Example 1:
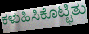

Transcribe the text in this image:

ಕಳುಹಿಸಿಕೊಟ್ಟಿತು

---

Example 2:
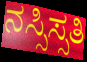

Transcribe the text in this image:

ನಸ್ಸಿಸ್ಸತಿ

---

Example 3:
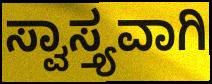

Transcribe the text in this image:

ಸ್ವಾಸ್ತ್ಯವಾಗಿ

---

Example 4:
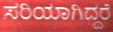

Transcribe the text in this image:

ಸರಿಯಾಗಿದ್ದರೆ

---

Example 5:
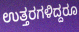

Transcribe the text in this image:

ಉತ್ತರಗಳಿದ್ದರೂ